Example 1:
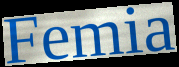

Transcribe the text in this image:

Femia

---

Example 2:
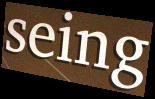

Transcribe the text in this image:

seing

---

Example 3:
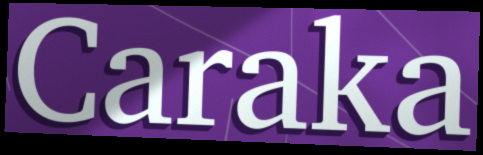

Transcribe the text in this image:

Caraka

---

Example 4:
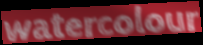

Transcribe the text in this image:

watercolour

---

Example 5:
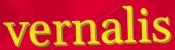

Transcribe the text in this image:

vernalis